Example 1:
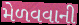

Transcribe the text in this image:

મેળવવાની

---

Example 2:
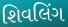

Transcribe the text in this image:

શિવલિંગ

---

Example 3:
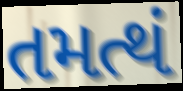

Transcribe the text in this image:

તમત્થં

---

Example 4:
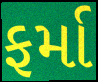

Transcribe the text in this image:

ફર્મા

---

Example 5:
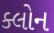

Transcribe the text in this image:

ક્લોન